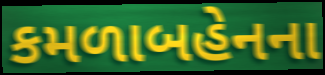
કમળાબહેનના